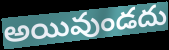
అయివుండదు